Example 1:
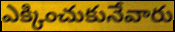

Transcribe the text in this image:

ఎక్కించుకునేవారు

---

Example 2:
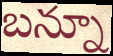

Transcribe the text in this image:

బన్నూ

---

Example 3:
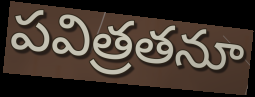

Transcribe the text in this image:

పవిత్రతనూ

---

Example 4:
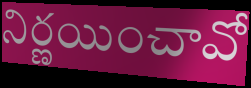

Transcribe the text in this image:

నిర్ణయించావో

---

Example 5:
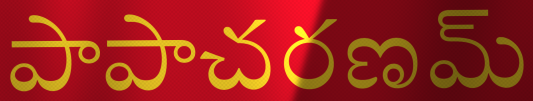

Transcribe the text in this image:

పాపాచరణమ్